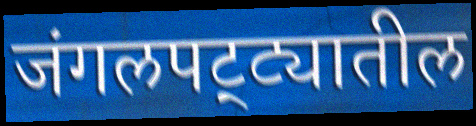
जंगलपट्ट्यातील